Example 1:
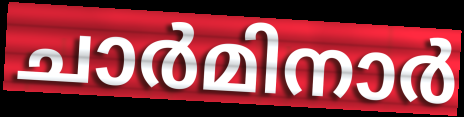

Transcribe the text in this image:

ചാർമിനാർ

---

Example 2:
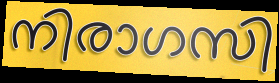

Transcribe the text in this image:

നിരാഗസി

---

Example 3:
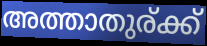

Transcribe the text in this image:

അത്താതുര്ക്ക്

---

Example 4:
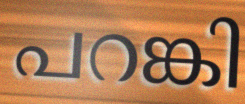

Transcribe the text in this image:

പറങ്കി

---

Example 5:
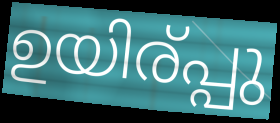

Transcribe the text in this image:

ഉയിര്പ്പു